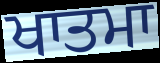
ਖਾਤਮਾ